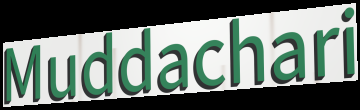
Muddachari